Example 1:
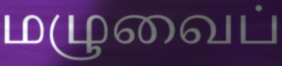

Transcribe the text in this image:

மழுவைப்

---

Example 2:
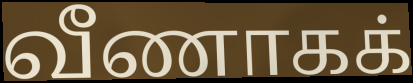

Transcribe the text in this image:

வீணாகக்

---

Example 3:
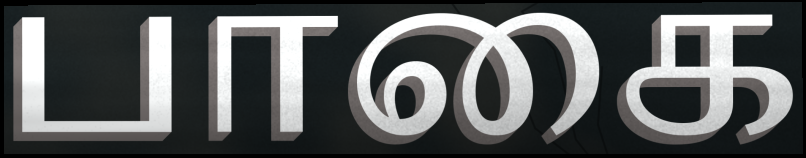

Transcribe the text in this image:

பாகை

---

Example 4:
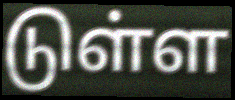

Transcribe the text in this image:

டுள்ள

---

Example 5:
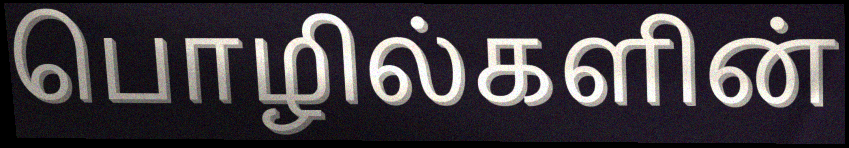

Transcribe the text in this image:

பொழில்களின்